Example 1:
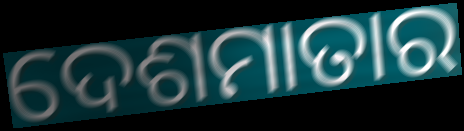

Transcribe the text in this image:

ଦେଶମାତାର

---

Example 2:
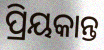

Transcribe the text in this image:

ପ୍ରିୟକାନ୍ତ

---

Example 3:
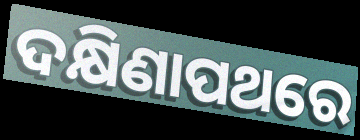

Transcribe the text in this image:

ଦକ୍ଷିଣାପଥରେ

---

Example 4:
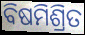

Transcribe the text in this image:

ବିଷମିଶ୍ରିତ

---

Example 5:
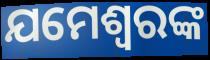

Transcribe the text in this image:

ଯମେଶ୍ୱରଙ୍କ